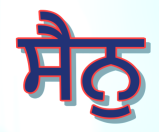
ਸੈਨੁ